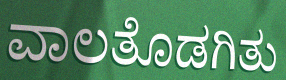
ವಾಲತೊಡಗಿತು